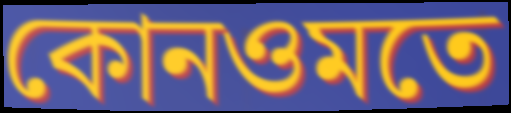
কোনওমতে